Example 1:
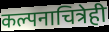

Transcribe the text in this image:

कल्पनाचित्रेही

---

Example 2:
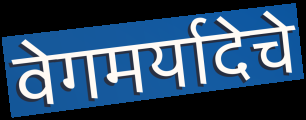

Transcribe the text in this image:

वेगमर्यादेचे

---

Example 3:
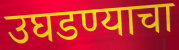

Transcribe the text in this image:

उघडण्याचा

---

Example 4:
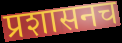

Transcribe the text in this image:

प्रशासनच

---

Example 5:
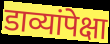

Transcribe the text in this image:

डाव्यांपेक्षा